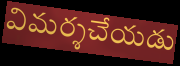
విమర్శచేయడు